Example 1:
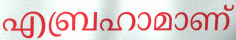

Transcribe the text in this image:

എബ്രഹാമാണ്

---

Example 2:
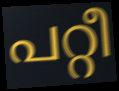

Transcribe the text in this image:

പറ്റീ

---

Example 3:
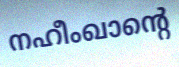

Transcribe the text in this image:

നഹീംഖാന്റെ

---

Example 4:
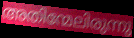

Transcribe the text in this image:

അതിന്മേലിരുന്നു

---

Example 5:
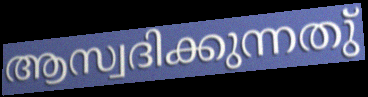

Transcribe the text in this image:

ആസ്വദിക്കുന്നതു്